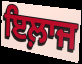
ਇਲ਼ਾਜ